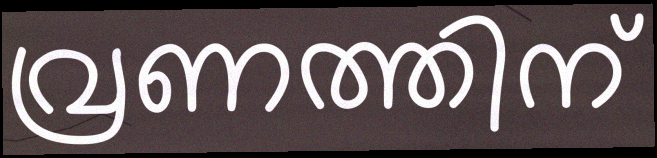
വ്രണത്തിന്